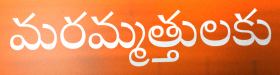
మరమ్మత్తులకు